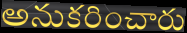
అనుకరించారు